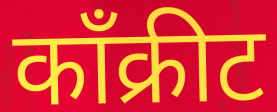
काँक्रीट